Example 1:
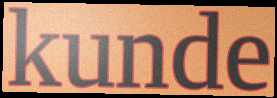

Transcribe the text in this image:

kunde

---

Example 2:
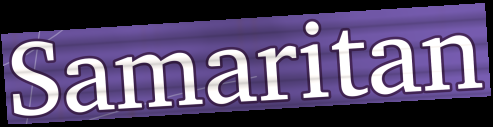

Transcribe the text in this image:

Samaritan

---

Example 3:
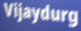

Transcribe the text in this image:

Vijaydurg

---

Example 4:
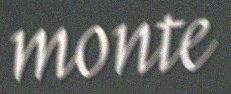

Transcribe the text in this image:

monte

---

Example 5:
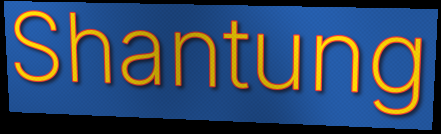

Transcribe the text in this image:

Shantung